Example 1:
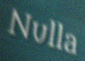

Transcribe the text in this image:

Nulla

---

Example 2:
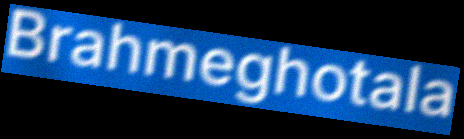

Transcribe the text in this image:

Brahmeghotala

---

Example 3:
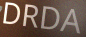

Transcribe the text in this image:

DRDA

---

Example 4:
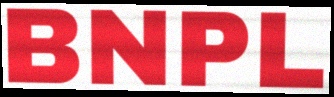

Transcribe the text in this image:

BNPL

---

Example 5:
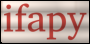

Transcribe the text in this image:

ifapy